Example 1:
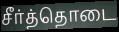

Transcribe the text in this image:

சீர்த்தொடை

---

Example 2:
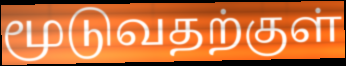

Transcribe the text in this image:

மூடுவதற்குள்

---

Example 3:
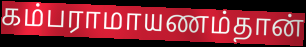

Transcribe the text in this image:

கம்பராமாயணம்தான்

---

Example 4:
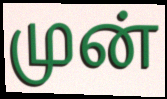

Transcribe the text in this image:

முன்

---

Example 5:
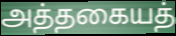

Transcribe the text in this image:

அத்தகையத்